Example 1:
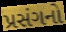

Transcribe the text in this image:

પ્રસંગનો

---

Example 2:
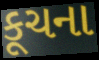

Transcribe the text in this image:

કૂચના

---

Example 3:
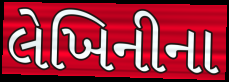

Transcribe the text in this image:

લેખિનીના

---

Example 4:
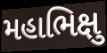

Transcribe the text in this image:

મહાભિક્ષુ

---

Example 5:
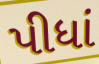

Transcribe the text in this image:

પીધાં